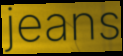
jeans